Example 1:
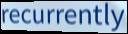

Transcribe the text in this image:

recurrently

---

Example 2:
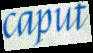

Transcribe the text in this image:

caput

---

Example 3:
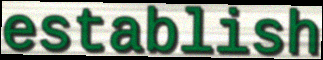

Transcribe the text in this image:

establish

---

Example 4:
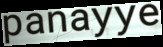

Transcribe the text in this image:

panayye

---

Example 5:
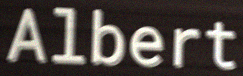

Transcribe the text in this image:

Albert